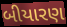
બીયારણ